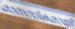
മാനസികമായി